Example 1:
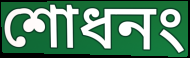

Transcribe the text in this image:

শোধনং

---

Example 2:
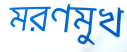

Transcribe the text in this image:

মরণমুখ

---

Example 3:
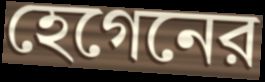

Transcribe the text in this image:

হেগেনের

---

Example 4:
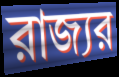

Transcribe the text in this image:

রাজ্যর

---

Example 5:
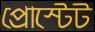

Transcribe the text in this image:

প্রোস্টেট